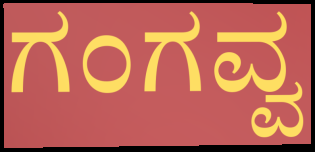
ಗಂಗವ್ವ